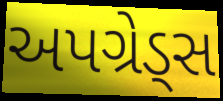
અપગ્રેડ્સ